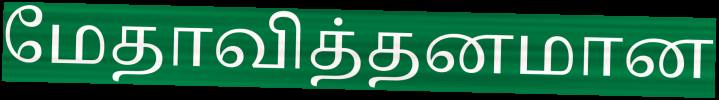
மேதாவித்தனமான